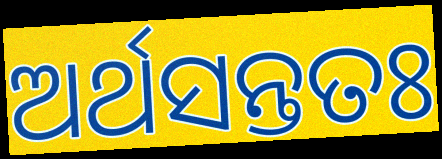
ଅର୍ଥସନ୍ତତଃ